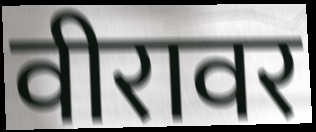
वीरावर